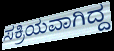
ಸಕ್ರಿಯವಾಗಿದ್ದ